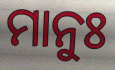
ମାନୁଃ